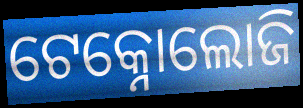
ଟେକ୍ନୋଲୋଜି